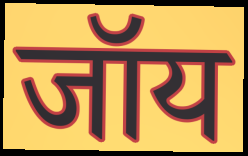
जॉय